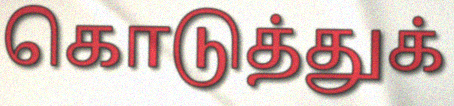
கொடுத்துக்